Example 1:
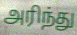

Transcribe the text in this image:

அரிந்து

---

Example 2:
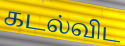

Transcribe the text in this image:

கடல்விட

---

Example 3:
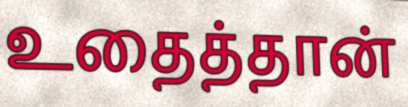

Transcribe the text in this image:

உதைத்தான்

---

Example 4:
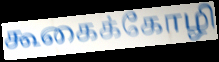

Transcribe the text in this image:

கூகைக்கோழி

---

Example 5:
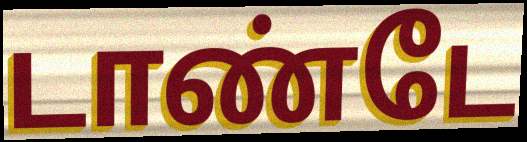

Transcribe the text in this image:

டாண்டே